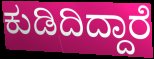
ಕುಡಿದಿದ್ದಾರೆ